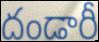
దండారీ